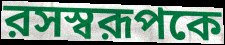
রসস্বরূপকে